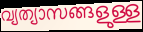
വ്യത്യാസങ്ങളുള്ള